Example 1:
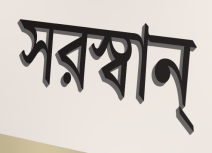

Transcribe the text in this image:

সরস্বান্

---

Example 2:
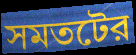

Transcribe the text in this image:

সমতটের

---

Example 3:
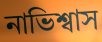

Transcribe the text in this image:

নাভিশ্বাস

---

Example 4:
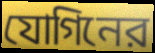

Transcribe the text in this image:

যোগিনের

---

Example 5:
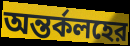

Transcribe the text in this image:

অন্তর্কলহের